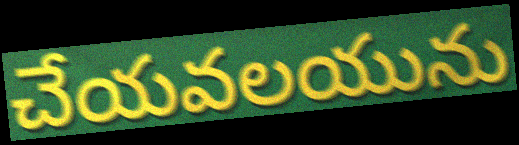
చేయవలయును